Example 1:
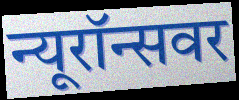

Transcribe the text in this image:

न्यूरॉन्सवर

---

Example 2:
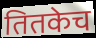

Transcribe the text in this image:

तितकेच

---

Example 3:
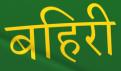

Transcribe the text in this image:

बहिरी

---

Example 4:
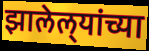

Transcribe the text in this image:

झालेल्यांच्या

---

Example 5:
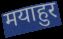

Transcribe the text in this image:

मयाहुर